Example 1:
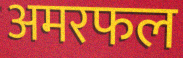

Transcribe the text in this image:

अमरफल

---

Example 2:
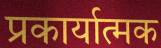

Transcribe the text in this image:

प्रकार्यात्मक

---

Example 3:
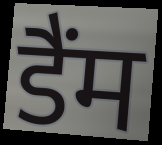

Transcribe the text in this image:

डैंम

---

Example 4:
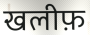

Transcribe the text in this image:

खलीफ़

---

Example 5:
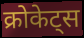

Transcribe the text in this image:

क्रोकेट्स